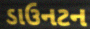
ડાઉનટન